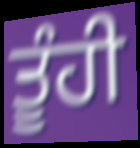
ਤੂੰਹੀ